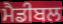
ਮੈਡੀਬਲ